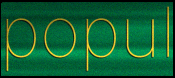
popul